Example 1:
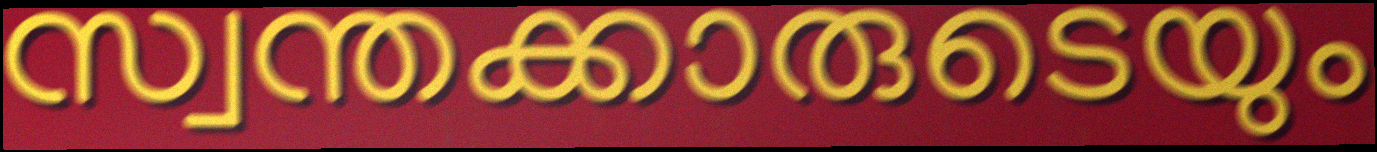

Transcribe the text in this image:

സ്വന്തക്കാരുടെയും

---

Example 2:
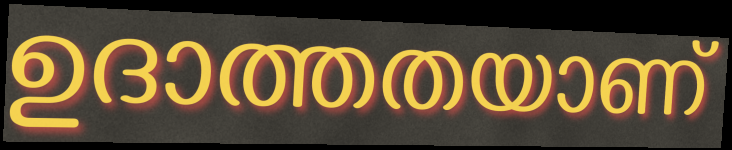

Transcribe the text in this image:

ഉദാത്തതയാണ്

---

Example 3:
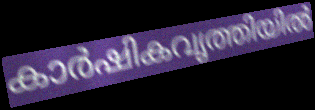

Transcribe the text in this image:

കാർഷികവൃത്തിയിൽ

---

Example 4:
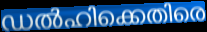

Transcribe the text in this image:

ഡൽഹിക്കെതിരെ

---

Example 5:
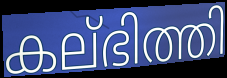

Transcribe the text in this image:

കല്ഭിത്തി